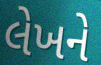
લેખને